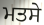
ਮਤਸੇ